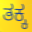
ತಕ್ಕ